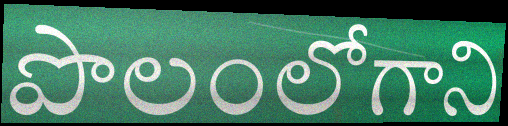
పొలంలోగాని